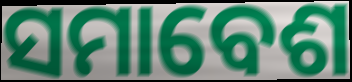
ସମାବେଶ